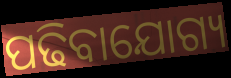
ପଢିବାଯୋଗ୍ୟ